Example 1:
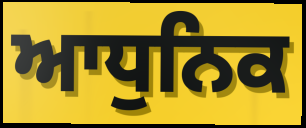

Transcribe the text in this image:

ਆਧੁਨਿਕ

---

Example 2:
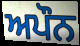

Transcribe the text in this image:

ਅਪੌਨ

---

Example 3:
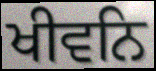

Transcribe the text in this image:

ਖੀਵਨਿ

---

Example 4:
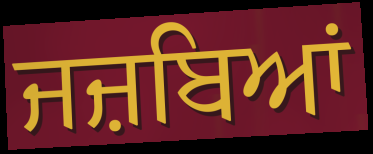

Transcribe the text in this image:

ਜਜ਼ਬਿਆਂ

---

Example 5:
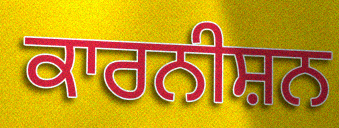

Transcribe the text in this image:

ਕਾਰਨੀਸ਼ਨ